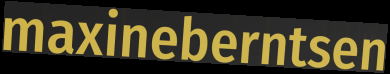
maxineberntsen